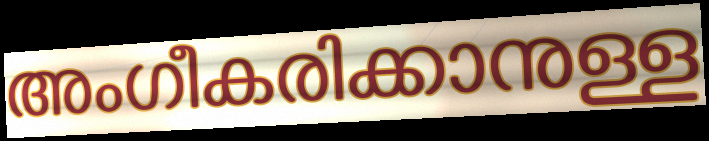
അംഗീകരിക്കാനുള്ള